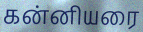
கன்னியரை